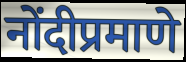
नोंदीप्रमाणे